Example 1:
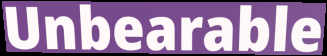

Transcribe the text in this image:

Unbearable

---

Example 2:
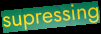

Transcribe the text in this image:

supressing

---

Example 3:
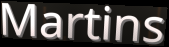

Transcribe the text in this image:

Martins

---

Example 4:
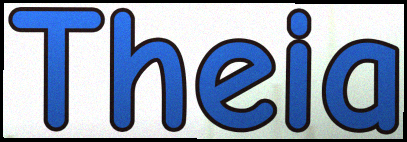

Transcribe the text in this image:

Theia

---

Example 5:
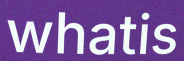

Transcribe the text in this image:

whatis